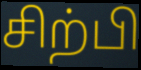
சிற்பி